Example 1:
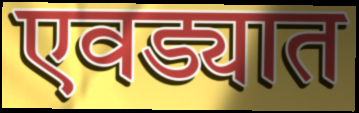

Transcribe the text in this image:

एवड्यात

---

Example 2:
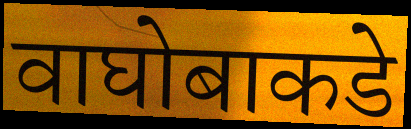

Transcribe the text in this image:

वाघोबाकडे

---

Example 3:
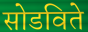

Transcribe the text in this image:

सोडविते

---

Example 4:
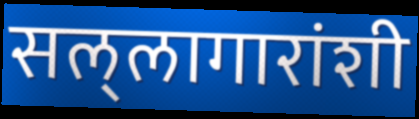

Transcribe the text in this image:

सल्लागारांशी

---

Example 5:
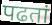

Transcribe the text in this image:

पढतां